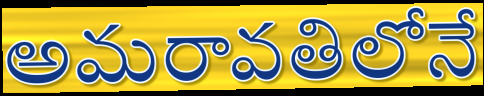
అమరావతిలోనే